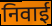
निवाई